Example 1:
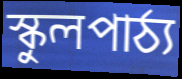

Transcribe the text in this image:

স্কুলপাঠ্য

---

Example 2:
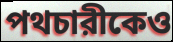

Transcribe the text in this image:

পথচারীকেও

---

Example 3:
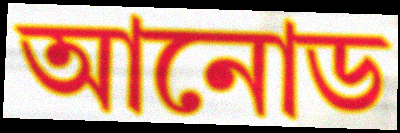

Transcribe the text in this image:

আনোড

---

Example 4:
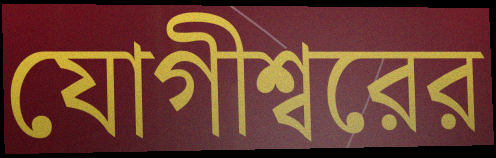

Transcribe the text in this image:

যোগীশ্বরের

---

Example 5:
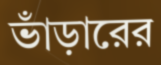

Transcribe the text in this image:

ভাঁড়ারের